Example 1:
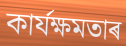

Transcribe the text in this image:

কাৰ্যক্ষমতাৰ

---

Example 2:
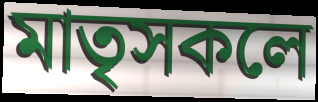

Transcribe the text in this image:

মাতৃসকলে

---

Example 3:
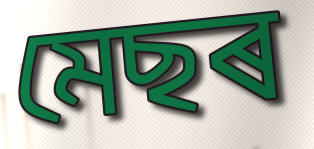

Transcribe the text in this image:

মেছৰ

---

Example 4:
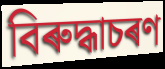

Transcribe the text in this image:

বিৰুদ্ধাচৰণ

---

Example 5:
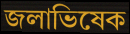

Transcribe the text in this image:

জলাভিষেক